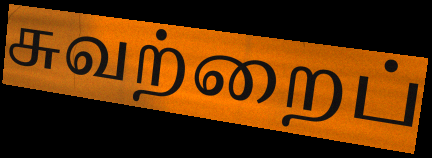
சுவற்றைப்